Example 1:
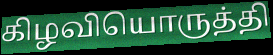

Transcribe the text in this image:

கிழவியொருத்தி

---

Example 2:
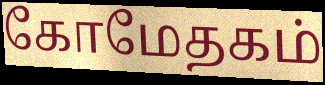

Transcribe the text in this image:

கோமேதகம்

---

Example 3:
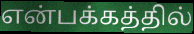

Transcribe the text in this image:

என்பக்கத்தில்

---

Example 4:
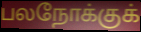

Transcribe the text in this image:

பலநோக்குக்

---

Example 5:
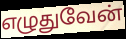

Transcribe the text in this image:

எழுதுவேன்